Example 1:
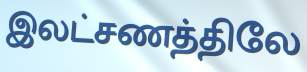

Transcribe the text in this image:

இலட்சணத்திலே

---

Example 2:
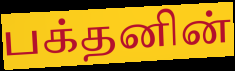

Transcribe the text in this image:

பக்தனின்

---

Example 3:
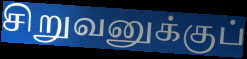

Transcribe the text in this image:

சிறுவனுக்குப்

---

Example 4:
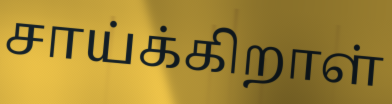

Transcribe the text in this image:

சாய்க்கிறாள்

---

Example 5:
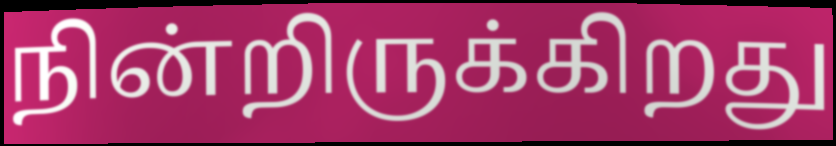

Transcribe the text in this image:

நின்றிருக்கிறது